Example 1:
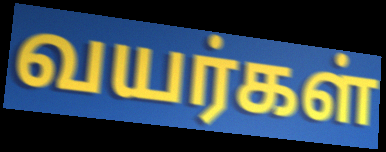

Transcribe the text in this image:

வயர்கள்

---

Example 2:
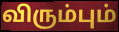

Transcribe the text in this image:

விரும்பும்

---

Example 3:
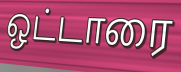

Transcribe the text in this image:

ஒட்டாரை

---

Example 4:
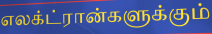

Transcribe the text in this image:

எலக்ட்ரான்களுக்கும்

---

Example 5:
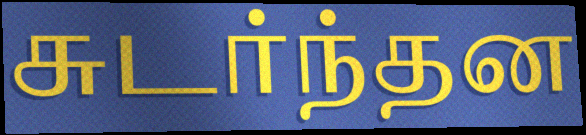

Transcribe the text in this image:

சுடர்ந்தன